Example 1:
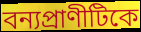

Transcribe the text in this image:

বন্যপ্রাণীটিকে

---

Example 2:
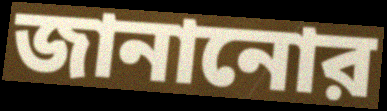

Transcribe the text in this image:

জানানোর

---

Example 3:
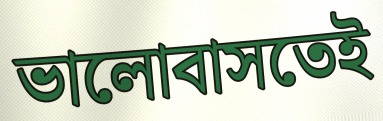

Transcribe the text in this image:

ভালোবাসতেই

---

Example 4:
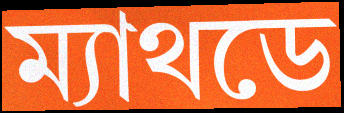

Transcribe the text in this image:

ম্যাথডে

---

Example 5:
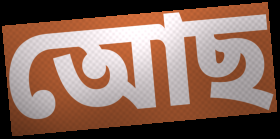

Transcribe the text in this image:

আেছ